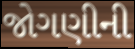
જોગણીની